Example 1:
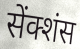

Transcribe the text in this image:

सेंक्शंस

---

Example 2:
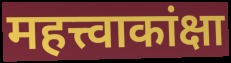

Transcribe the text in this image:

महत्त्वाकांक्षा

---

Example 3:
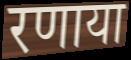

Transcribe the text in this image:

रणाया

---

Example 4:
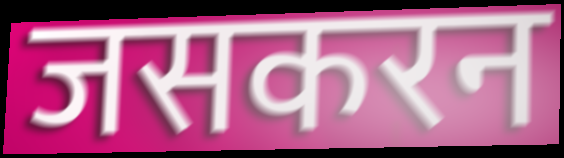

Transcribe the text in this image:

जसकरन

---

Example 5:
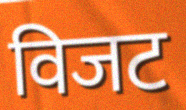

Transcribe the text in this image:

विजट